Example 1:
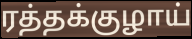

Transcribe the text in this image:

ரத்தக்குழாய்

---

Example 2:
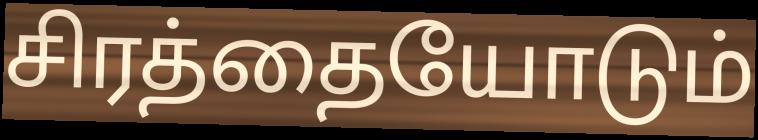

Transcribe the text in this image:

சிரத்தையோடும்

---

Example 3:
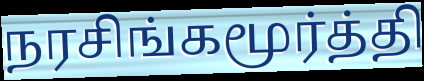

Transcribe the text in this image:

நரசிங்கமூர்த்தி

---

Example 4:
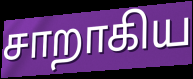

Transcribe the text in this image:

சாறாகிய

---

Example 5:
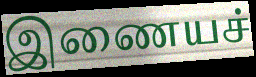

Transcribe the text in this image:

இணையச்